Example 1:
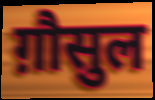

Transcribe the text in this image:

ग़ौसुल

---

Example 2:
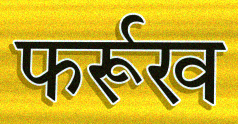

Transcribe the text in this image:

फर्रूख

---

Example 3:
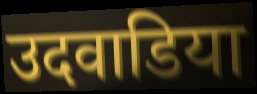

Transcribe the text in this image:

उदवाडिया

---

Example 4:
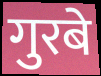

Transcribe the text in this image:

गुरबे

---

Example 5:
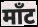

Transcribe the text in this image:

माँट